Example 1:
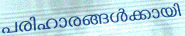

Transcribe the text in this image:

പരിഹാരങ്ങൾക്കായി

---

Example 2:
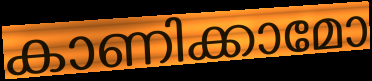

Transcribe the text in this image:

കാണിക്കാമോ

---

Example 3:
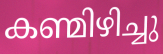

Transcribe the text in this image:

കണ്മിഴിച്ചു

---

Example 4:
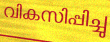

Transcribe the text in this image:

വികസിപ്പിച്ചു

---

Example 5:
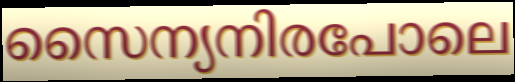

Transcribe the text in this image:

സൈന്യനിരപോലെ